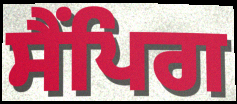
ਸੈਂਪਿਗ